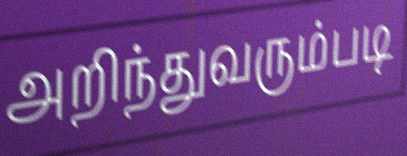
அறிந்துவரும்படி